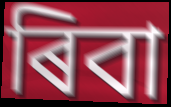
ৰিবা